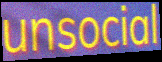
unsocial